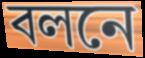
বলনে